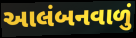
આલંબનવાળું